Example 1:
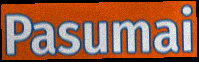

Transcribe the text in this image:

Pasumai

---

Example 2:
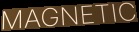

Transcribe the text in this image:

MAGNETIC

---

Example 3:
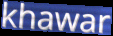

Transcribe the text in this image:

khawar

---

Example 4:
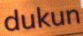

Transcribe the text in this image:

dukun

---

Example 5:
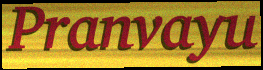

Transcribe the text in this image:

Pranvayu